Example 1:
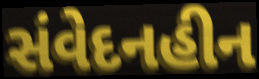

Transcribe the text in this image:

સંવેદનહીન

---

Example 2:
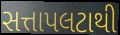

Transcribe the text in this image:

સત્તાપલટાથી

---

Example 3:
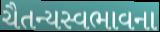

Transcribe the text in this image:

ચૈતન્યસ્વભાવના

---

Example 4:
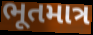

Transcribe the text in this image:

ભૂતમાત્ર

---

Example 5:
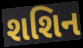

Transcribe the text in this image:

શશિન